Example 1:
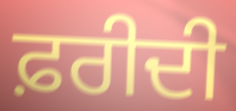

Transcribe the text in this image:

ਫ਼ਰੀਦੀ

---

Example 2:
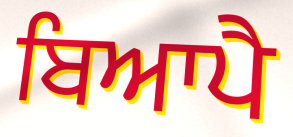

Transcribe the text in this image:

ਬਿਆਪੈ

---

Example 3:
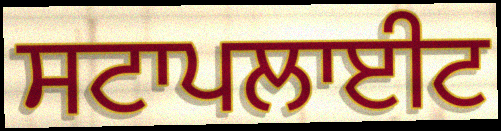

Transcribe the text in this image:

ਸਟਾਪਲਾਈਟ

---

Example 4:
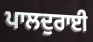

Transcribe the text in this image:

ਪਾਲਦੁਰਾਈ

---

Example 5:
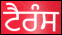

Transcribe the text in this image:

ਟੈਰੰਸ